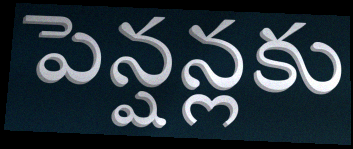
పెన్షన్లకు